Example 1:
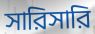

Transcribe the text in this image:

সারিসারি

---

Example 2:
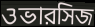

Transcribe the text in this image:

ওভারসিজ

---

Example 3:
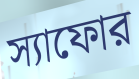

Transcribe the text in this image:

স্যাফোর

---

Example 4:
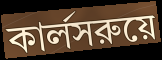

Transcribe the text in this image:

কার্লসরুয়ে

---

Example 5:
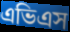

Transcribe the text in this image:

এভিএস